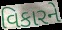
વિકારને